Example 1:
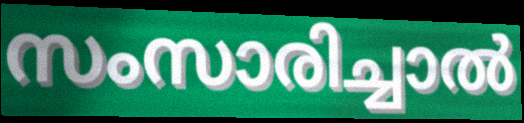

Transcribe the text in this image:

സംസാരിച്ചാൽ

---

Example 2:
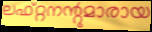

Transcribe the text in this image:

ലഫ്റ്റനന്റുമാരായ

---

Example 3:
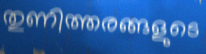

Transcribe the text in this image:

തുണിത്തരങ്ങളുടെ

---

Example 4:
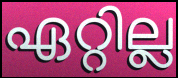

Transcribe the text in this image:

ഏറ്റില്ല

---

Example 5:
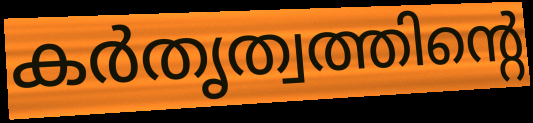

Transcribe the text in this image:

കർതൃത്വത്തിന്റെ